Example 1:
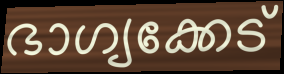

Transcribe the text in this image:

ഭാഗ്യക്കേട്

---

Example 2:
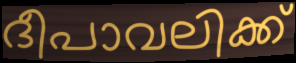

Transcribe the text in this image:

ദീപാവലിക്ക്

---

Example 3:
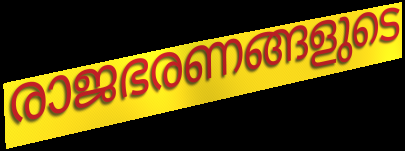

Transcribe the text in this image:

രാജഭരണങ്ങളുടെ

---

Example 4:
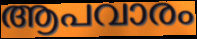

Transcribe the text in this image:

ആപവാരം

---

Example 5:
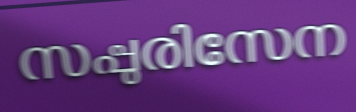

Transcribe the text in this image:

സപ്പുരിസേന